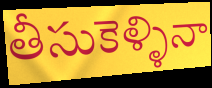
తీసుకెళ్ళినా